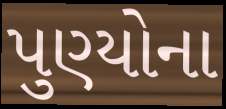
પુણ્યોના